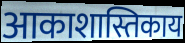
आकाशास्तिकाय